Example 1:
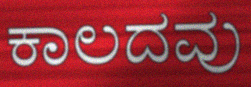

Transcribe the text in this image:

ಕಾಲದವು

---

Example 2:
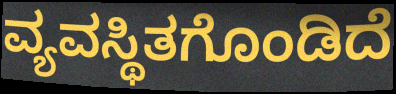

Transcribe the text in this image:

ವ್ಯವಸ್ಥಿತಗೊಂಡಿದೆ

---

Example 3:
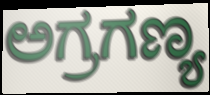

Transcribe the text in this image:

ಅಗ್ರಗಣ್ಯ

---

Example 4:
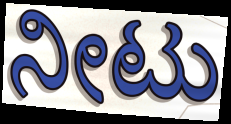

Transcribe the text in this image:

ನೀಟು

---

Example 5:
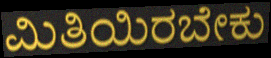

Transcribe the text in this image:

ಮಿತಿಯಿರಬೇಕು